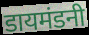
डायमंडनी